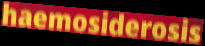
haemosiderosis